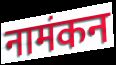
नामंकन